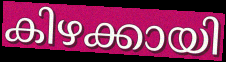
കിഴക്കായി